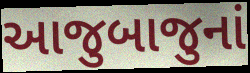
આજુબાજુનાં